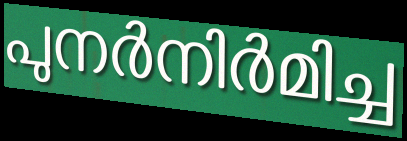
പുനർനിർമിച്ച